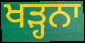
ਖੜ੍ਹਨਾ